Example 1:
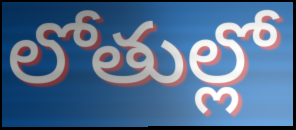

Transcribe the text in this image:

లోతుల్లో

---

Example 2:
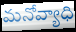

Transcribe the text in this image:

మనోవ్యాధి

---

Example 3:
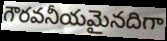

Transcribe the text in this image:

గౌరవనీయమైనదిగా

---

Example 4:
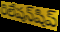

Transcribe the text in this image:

రిలేషన్‌షిప్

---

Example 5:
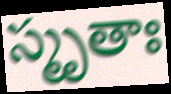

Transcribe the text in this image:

స్మృతాః